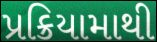
પ્રક્રિયામાથી